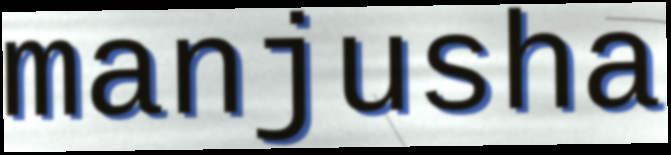
manjusha